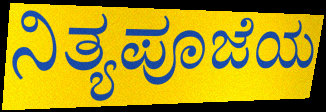
ನಿತ್ಯಪೂಜೆಯ